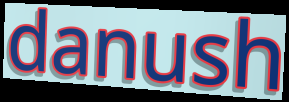
danush